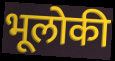
भूलोकी